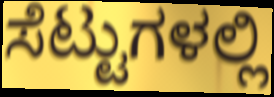
ಸೆಟ್ಟುಗಳಲ್ಲಿ